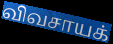
விவசாயக்